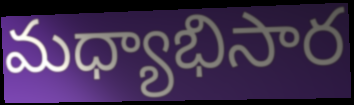
మధ్యాభిసార